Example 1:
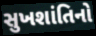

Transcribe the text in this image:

સુખશાંતિનો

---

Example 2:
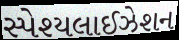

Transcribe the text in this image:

સ્પેશ્યલાઈઝેશન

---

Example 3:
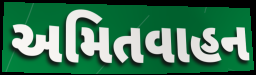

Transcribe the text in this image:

અમિતવાહન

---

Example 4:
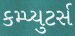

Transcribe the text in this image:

કમ્પ્યુટર્સ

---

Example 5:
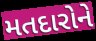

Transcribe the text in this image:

મતદારોને